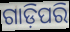
ଗାଡ଼ିପରି